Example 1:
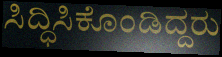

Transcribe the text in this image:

ಸಿದ್ಧಿಸಿಕೊಂಡಿದ್ದರು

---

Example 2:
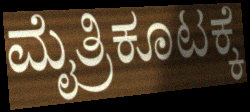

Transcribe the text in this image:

ಮೈತ್ರಿಕೂಟಕ್ಕೆ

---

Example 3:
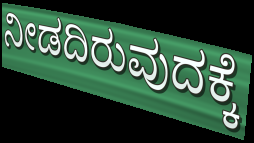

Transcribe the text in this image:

ನೀಡದಿರುವುದಕ್ಕೆ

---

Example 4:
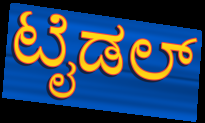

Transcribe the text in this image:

ಟೈಡಲ್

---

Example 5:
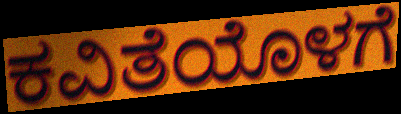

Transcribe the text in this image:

ಕವಿತೆಯೊಳಗೆ